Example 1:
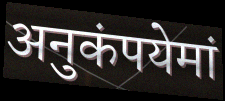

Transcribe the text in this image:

अनुकंपयेमां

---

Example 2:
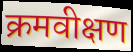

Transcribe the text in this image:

क्रमवीक्षण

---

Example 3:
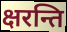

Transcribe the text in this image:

क्षरन्ति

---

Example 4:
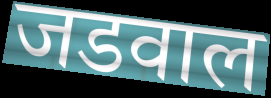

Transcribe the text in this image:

जडवाल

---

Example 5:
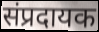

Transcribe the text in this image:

संप्रदायक